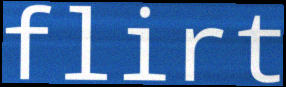
flirt